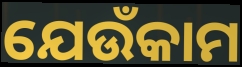
ଯେଉଁକାମ